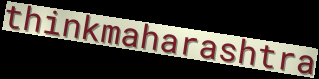
thinkmaharashtra